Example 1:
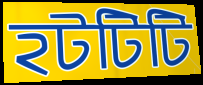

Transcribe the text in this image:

হটটিটি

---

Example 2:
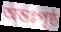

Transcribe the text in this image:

অন্তঃপৃষ্ঠ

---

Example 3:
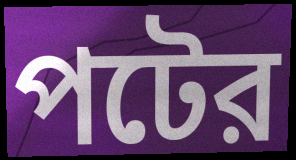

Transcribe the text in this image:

পটের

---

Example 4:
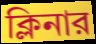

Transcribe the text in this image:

ক্লিনার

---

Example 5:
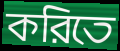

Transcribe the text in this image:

করিতে